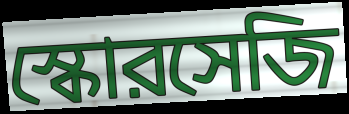
স্কোরসেজি